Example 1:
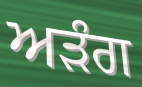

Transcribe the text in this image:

ਅੜੰਗ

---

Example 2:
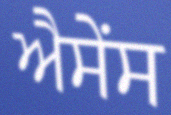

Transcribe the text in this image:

ਐਸੇਂਸ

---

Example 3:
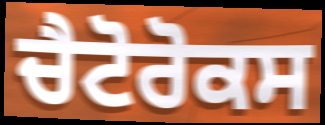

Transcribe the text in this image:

ਚੈਟੋਰੋਕਸ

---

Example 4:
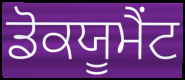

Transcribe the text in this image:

ਡੋਕਯੂਮੈਂਟ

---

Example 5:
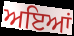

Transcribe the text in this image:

ਅਇਆਂ